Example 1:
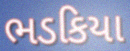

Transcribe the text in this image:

ભડકિયા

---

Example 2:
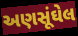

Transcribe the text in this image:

અણસૂંઘેલ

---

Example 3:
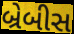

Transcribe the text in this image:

બ્રેબીસ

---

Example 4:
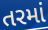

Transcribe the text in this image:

તરમાં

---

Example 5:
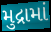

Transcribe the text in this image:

મુદ્રામાં